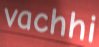
vachhi